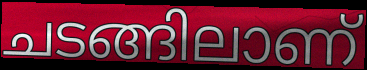
ചടങ്ങിലാണ്